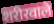
शरीरवाले